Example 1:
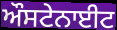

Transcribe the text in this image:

ਔਸਟੇਨਾਈਟ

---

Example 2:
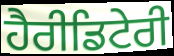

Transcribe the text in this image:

ਹੈਰੀਡਿਟੇਰੀ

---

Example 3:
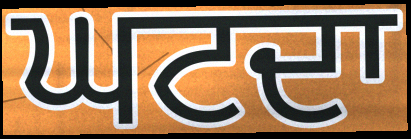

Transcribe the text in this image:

ਘਟਦਾ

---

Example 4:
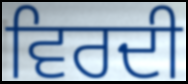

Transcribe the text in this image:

ਵਿਰਦੀ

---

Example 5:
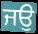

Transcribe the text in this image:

ਜਉ